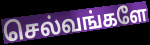
செல்வங்களே